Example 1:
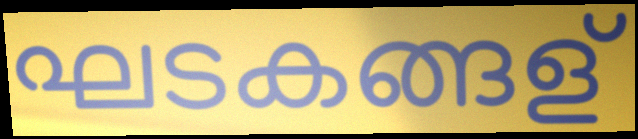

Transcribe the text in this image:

ഘടകങ്ങള്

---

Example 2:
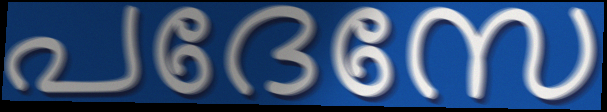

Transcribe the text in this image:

പദേസേ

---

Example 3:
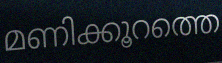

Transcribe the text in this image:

മണിക്കൂറത്തെ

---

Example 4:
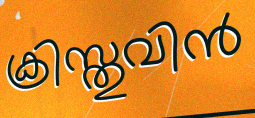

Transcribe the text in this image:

ക്രിസ്തുവിൻ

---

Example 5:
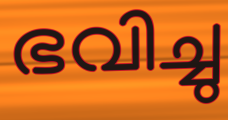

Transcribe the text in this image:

ഭവിച്ചു